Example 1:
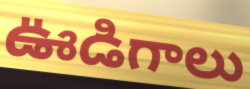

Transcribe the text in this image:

ఊడిగాలు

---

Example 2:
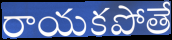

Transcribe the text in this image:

రాయకపోతే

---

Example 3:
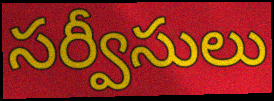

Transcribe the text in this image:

సర్వీసులు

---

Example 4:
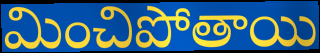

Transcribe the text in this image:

మించిపోతాయి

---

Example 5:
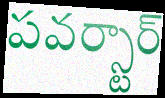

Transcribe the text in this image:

పవర్స్టార్